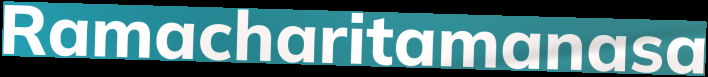
Ramacharitamanasa